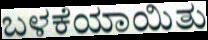
ಬಳಕೆಯಾಯಿತು